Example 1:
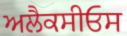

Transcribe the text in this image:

ਅਲੈਕਸੀਓਸ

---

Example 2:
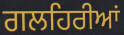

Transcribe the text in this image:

ਗਲਹਿਰੀਆਂ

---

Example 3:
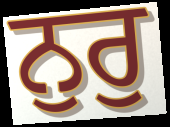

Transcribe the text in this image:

ਨੁਰੁ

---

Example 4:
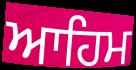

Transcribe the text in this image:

ਆਹਿਮ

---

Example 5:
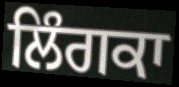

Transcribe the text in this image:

ਲਿੰਗਕਾ